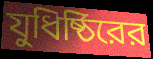
যুধিষ্ঠিরের